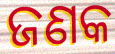
ଜଣକ